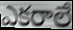
ఎకరాలే